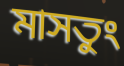
মাসতুং